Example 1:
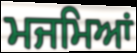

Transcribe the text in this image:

ਮਜਮਿਆਂ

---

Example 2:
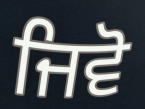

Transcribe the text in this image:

ਜਿਵੋ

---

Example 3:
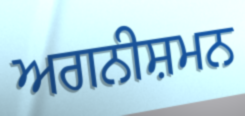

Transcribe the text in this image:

ਅਗਨੀਸ਼ਮਨ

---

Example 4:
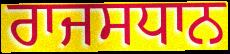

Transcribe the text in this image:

ਰਾਜਸਧਾਨ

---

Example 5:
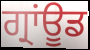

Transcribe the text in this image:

ਗ੍ਰਾਂਊਡ